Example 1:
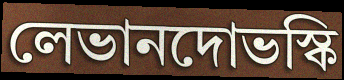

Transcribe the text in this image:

লেভানদোভস্কি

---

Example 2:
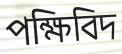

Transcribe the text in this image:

পক্ষিবিদ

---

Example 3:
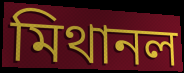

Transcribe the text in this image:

মিথানল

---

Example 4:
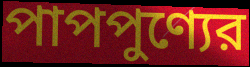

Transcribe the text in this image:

পাপপুণ্যের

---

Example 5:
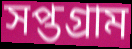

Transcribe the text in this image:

সপ্তগ্রাম